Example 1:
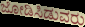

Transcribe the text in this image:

ಜೋಡಿಸಿಡುವರು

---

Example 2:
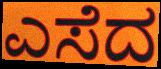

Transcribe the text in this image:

ಎಸೆದ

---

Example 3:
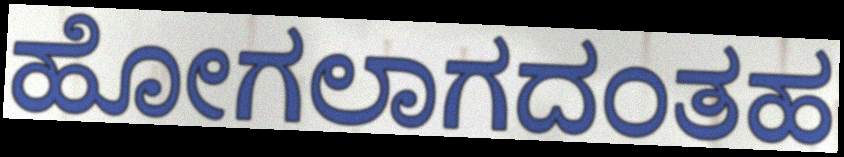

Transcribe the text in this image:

ಹೋಗಲಾಗದಂತಹ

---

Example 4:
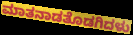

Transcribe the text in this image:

ಮಾತನಾಡತೊಡಗಿದಳು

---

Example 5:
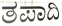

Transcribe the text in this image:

ತಪಾದಿ